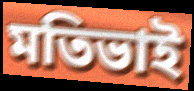
মতিভাই